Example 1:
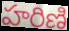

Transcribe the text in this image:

హరిణి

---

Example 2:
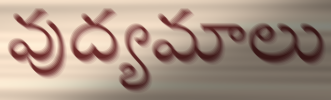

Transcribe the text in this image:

వుద్యమాలు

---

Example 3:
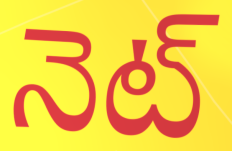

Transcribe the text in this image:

నెట్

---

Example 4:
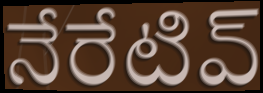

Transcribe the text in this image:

నేరేటివ్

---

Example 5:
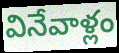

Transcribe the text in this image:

వినేవాళ్లం